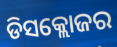
ଡିସକ୍ଲୋଜର